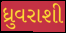
ધ્રુવરાશી